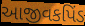
આજીવકપિંડ